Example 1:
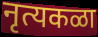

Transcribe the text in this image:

नृत्यकळा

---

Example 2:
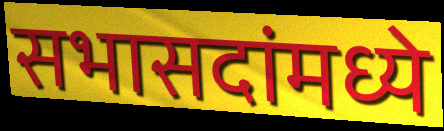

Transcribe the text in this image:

सभासदांमध्ये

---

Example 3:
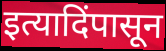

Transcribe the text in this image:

इत्यादिंपासून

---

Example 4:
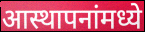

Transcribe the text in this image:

आस्थापनांमध्ये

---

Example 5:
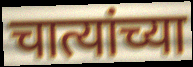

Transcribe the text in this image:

चात्यांच्या